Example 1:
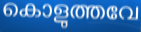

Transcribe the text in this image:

കൊളുത്തവേ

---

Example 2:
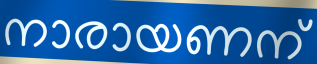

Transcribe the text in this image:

നാരായണന്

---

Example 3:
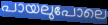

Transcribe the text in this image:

പായലുപോലെ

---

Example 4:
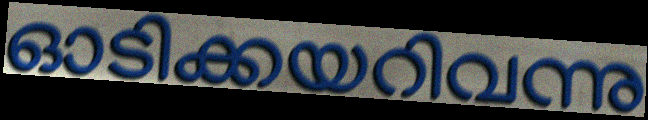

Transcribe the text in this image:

ഓടിക്കയറിവന്നു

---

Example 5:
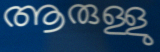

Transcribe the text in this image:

ആരുള്ളു